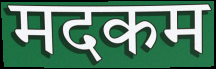
मदकम